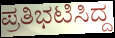
ಪ್ರತಿಭಟಿಸಿದ್ದ